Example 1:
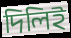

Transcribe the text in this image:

দিলিই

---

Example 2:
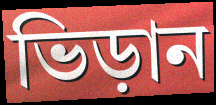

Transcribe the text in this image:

ভিড়ান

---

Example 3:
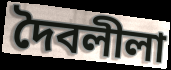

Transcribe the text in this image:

দৈবলীলা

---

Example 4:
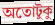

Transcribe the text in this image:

অতোটুকু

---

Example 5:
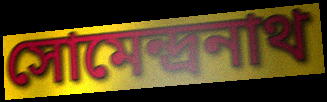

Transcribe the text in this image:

সোমেন্দ্রনাথ